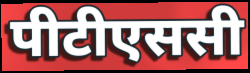
पीटीएससी